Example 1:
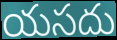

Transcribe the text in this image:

యసదు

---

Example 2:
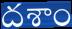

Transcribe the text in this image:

దశాం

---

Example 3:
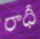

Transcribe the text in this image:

రాధీ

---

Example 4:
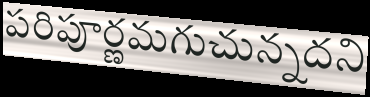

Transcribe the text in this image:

పరిపూర్ణమగుచున్నదని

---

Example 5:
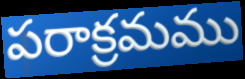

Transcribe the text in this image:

పరాక్రమము